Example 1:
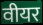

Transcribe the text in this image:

वीयर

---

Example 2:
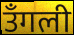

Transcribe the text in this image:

उँगली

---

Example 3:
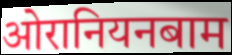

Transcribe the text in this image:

ओरानियनबाम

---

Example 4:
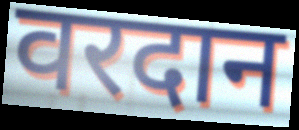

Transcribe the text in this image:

वरदान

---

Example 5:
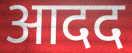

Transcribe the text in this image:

आदद